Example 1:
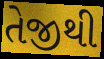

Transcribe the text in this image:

તેજીથી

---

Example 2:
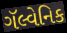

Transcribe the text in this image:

ગૅલ્વેનિક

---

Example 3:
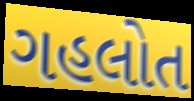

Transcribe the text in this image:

ગહલોત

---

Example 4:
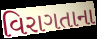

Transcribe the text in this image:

વિરાગતાના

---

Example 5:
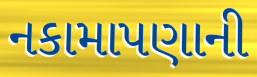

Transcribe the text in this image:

નકામાપણાની